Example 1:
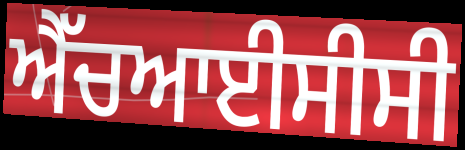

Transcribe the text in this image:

ਐੱਚਆਈਸੀਸੀ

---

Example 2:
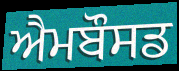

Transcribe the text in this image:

ਐਮਬੌਸਡ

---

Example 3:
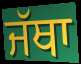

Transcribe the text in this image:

ਜੱਥਾ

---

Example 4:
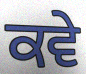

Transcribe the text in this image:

ਕਵੇ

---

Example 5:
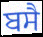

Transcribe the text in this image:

ਬਸੈ